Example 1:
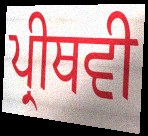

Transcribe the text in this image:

ਪ੍ਰੀਥਵੀ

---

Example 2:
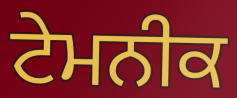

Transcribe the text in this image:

ਟੇਮਨੀਕ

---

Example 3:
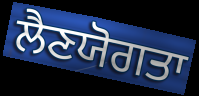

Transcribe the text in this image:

ਲੈਣਯੋਗਤਾ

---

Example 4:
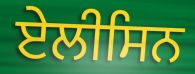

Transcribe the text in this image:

ਏਲੀਸਿਨ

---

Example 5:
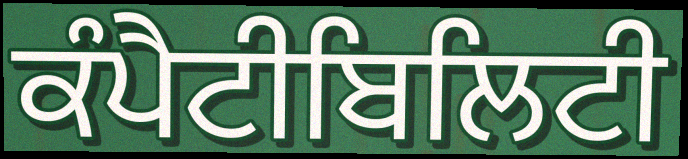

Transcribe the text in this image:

ਕੰਪੈਟੀਬਿਲਿਟੀ